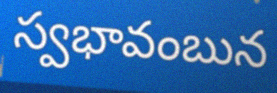
స్వభావంబున